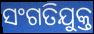
ସଂଗତିଯୁକ୍ତ